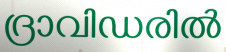
ദ്രാവിഡരിൽ